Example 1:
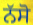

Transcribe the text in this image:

ਨੱਸੋ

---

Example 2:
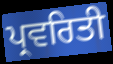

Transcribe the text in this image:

ਪ੍ਰਵਰਿਤੀ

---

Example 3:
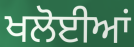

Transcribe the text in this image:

ਖਲੋਈਆਂ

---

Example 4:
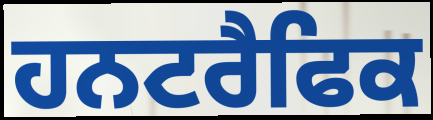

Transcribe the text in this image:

ਹਨਟਰੈਫਿਕ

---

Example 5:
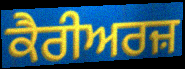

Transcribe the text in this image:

ਕੈਰੀਅਰਜ਼